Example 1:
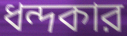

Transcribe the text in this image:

ধন্দকার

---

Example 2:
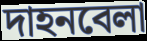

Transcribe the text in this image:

দাহনবেলা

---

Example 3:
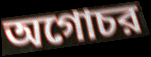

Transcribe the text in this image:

অগোচর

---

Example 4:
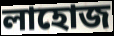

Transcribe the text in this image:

লাহোজ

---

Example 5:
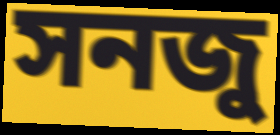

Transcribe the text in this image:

সনজু